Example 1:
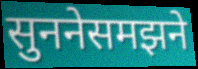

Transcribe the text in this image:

सुननेसमझने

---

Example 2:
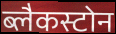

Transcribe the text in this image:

ब्लैकस्टोन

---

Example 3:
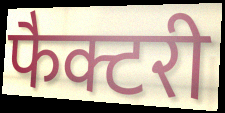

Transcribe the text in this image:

फैक्टरी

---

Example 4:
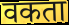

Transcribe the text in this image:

वकता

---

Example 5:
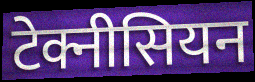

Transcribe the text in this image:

टेक्नीसियन